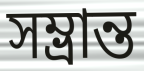
সম্ভ্ৰান্ত